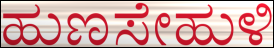
ಹುಣಸೇಹುಳಿ